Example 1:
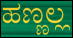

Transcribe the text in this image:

ಹಣ್ಣಲ್ಲ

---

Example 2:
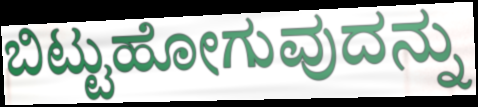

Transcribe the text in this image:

ಬಿಟ್ಟುಹೋಗುವುದನ್ನು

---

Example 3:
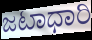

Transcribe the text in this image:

ಜಟಾಧಾರಿ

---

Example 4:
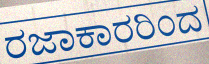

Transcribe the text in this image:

ರಜಾಕಾರರಿಂದ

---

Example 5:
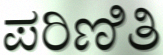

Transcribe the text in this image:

ಪರಿಣಿತಿ